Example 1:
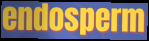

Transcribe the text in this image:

endosperm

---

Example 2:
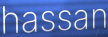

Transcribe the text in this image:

hassan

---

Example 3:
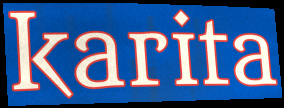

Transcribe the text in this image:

karita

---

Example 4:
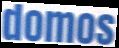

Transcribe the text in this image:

domos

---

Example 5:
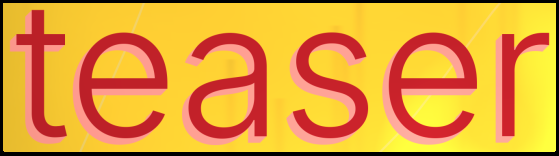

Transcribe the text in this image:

teaser